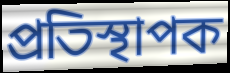
প্ৰতিস্থাপক